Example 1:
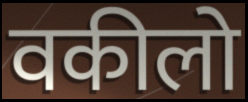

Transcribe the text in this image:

वकीलो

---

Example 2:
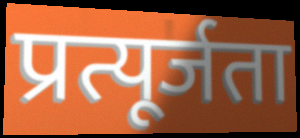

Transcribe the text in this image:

प्रत्यूर्जता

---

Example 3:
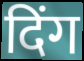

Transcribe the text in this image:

दिंग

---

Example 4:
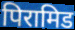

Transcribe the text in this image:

पिरामिड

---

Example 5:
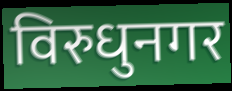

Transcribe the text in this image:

विरुधुनगर